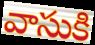
వాసుకి